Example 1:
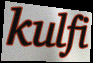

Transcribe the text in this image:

kulfi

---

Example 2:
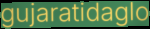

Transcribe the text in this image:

gujaratidaglo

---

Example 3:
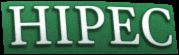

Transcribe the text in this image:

HIPEC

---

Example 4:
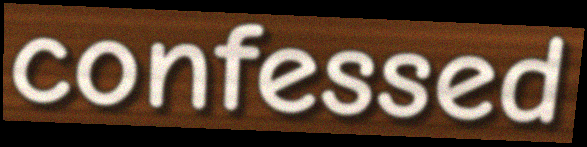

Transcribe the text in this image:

confessed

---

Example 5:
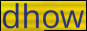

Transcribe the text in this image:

dhow